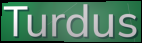
Turdus